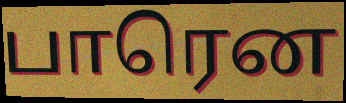
பாரென